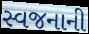
સ્વજનાની